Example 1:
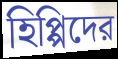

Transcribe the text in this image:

হিপ্পিদের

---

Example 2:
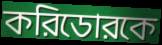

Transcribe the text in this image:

করিডোরকে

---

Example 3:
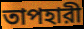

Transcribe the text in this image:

তাপহারী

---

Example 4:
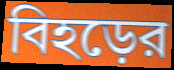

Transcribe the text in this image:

বিহড়ের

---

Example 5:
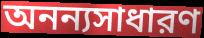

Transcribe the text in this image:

অনন্যসাধারণ